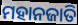
ମହାନଜାତି